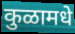
कुळामधे